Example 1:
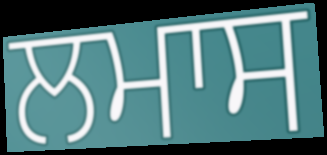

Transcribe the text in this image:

ਲਮਾਸ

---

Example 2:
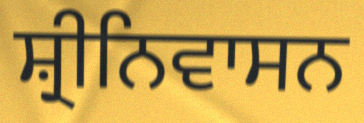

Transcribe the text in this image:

ਸ਼੍ਰੀਨਿਵਾਸਨ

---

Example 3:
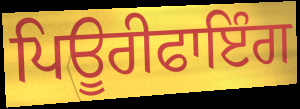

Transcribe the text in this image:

ਪਿਊਰੀਫਾਇੰਗ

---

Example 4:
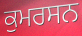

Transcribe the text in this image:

ਕੁਮਰਸਨ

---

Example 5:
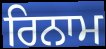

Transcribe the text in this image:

ਰਿਨਾਮ